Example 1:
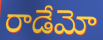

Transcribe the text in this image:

రాడేమో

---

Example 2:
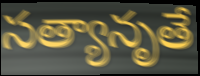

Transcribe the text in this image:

సత్యానృతే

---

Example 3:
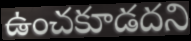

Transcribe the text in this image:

ఉంచకూడదని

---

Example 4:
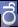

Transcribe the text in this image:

రే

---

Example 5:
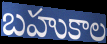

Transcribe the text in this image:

బహుకాల